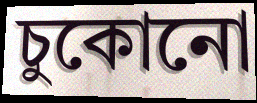
চুকোনো